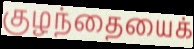
குழந்தையைக்